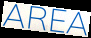
AREA